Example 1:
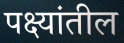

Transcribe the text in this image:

पक्ष्यांतील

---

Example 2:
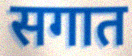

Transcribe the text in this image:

सगात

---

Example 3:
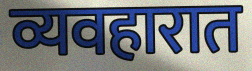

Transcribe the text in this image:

व्यवहारात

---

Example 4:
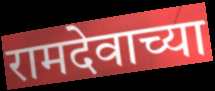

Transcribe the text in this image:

रामदेवाच्या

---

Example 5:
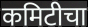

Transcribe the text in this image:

कमिटीचा